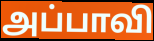
அப்பாவி